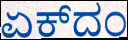
ಏಕ್‌ದಂ